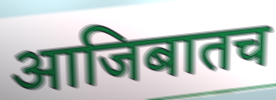
आजिबातच